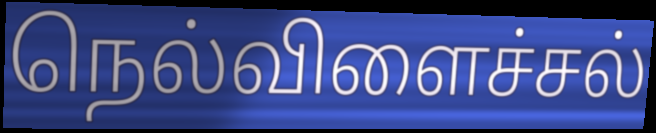
நெல்விளைச்சல்